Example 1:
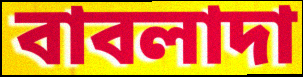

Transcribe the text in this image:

বাবলাদা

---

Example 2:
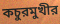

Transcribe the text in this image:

কচুরমুখীর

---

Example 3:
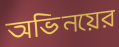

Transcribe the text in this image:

অভিনয়ের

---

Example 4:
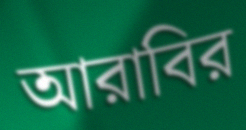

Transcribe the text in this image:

আরাবির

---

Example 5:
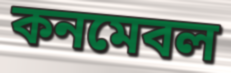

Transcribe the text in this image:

কনমেবল